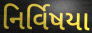
નિર્વિષયા